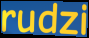
rudzi